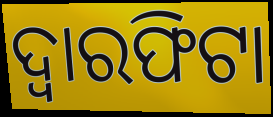
ଦ୍ୱାରଫିଟା